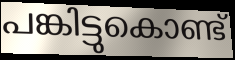
പങ്കിട്ടുകൊണ്ട്